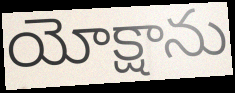
యోక్షాను